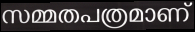
സമ്മതപത്രമാണ്